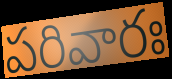
పరివారః